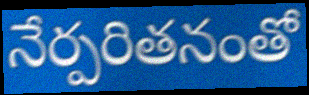
నేర్పరితనంతో